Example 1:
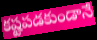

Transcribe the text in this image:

కష్టపడకుండానే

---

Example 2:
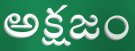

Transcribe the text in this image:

అక్షజం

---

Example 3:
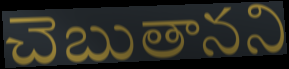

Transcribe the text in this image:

చెబుతానని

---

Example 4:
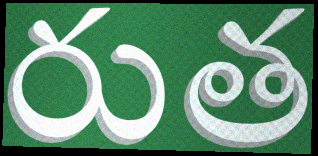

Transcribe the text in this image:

రుత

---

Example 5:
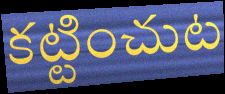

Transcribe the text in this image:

కట్టించుట